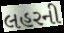
લહરની